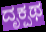
ದೃಕ್ಪಥ